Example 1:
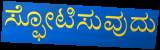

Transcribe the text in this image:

ಸ್ಫೋಟಿಸುವುದು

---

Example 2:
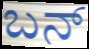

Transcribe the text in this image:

ಬನ್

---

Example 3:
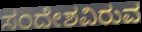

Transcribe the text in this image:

ಸಂದೇಶವಿರುವ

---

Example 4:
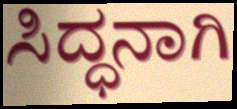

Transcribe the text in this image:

ಸಿದ್ಧನಾಗಿ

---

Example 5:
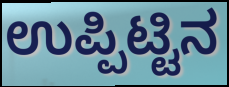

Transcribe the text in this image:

ಉಪ್ಪಿಟ್ಟಿನ